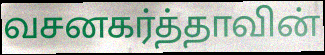
வசனகர்த்தாவின்